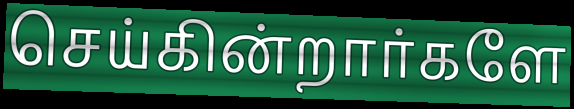
செய்கின்றார்களே